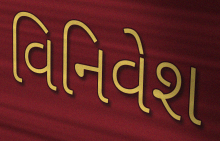
વિનિવેશ